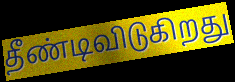
தீண்டிவிடுகிறது